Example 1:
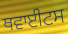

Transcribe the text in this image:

ਥਵਾਈਟਸ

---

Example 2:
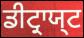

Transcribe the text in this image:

ਡੀਟ੍ਰਾਯ੍ਟ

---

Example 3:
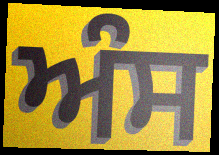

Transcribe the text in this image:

ਅੰਸ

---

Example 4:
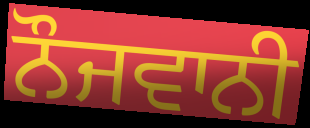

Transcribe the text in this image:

ਨੌਜਵਾਨੀ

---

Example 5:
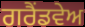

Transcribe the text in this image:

ਗਰੈਂਡਵੇਅ